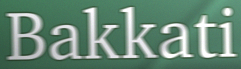
Bakkati